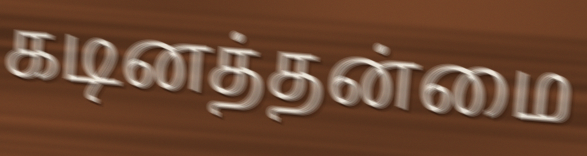
கடினத்தன்மை